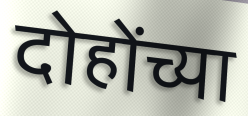
दोहोंच्या